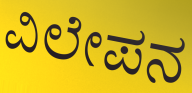
ವಿಲೇಪನ